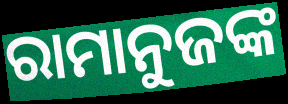
ରାମାନୁଜଙ୍କ